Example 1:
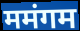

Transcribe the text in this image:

ममंगम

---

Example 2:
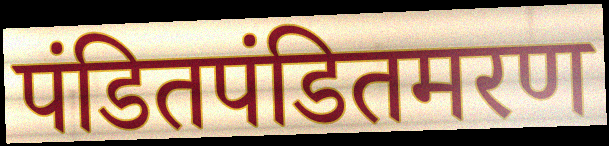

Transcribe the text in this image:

पंडितपंडितमरण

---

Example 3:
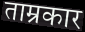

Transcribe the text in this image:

ताम्रकार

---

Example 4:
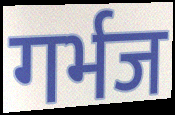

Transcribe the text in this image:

गर्भज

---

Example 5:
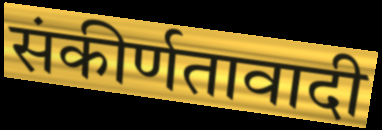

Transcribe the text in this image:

संकीर्णतावादी